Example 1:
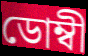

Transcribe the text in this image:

ডোম্বী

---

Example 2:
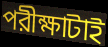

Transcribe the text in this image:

পরীক্ষাটাই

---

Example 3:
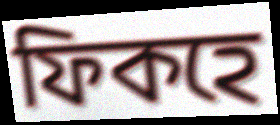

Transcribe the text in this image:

ফিকহে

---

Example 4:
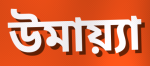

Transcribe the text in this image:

উমায়্যা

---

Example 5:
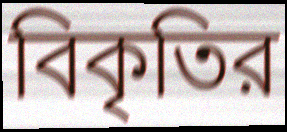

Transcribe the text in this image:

বিকৃতির